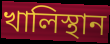
খালিস্থান